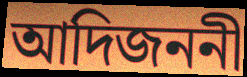
আদিজননী